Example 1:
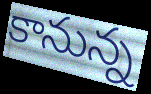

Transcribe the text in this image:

కానున్న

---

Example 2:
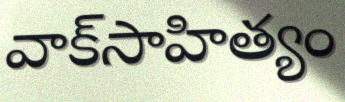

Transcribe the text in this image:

వాక్‌సాహిత్యం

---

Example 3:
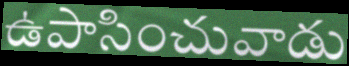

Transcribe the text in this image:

ఉపాసించువాడు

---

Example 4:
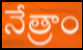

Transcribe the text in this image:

నేత్రాం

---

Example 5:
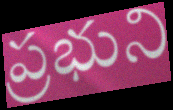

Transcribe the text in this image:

ప్రభుని